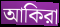
আকিরা